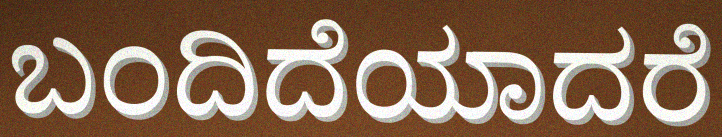
ಬಂದಿದೆಯಾದರೆ